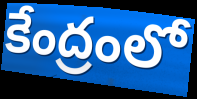
కేంద్రంలో